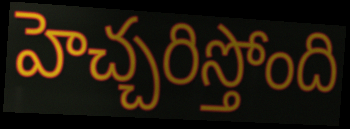
హెచ్చరిస్తోంది